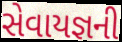
સેવાયજ્ઞની